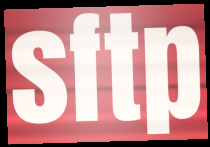
sftp